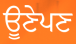
ਊਣੇਪਣ